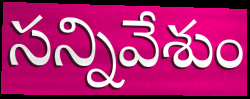
సన్నివేశుం